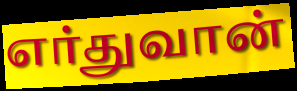
எர்துவான்